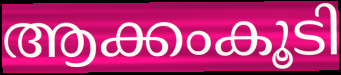
ആക്കംകൂടി